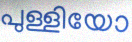
പുള്ളിയോ